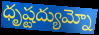
ధృష్టద్యుమ్నో